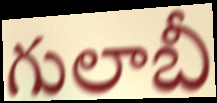
గులాబీ